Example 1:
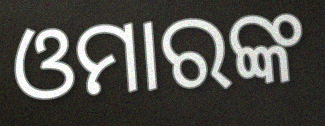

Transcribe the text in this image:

ଓମାରଙ୍କ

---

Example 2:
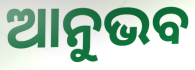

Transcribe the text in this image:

ଆନୁଭବ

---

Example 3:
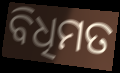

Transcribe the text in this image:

ବିଧିମତ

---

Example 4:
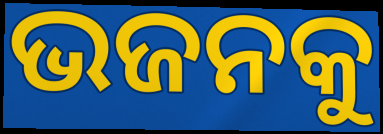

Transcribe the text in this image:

ଭଜନକୁ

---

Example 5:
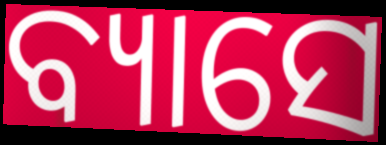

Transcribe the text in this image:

ବ୍ୟାସେ